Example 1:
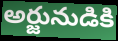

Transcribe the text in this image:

అర్జునుడికి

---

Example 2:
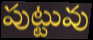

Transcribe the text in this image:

పుట్టువు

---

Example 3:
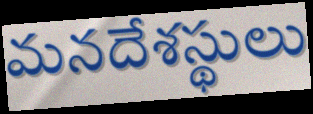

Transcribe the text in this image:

మనదేశస్థులు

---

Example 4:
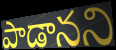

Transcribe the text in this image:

పాడానని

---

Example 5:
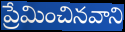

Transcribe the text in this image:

ప్రేమించినవాని